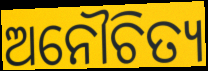
ଅନୌଚିତ୍ୟ